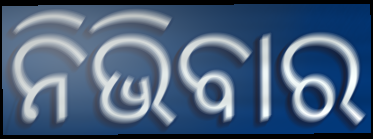
ନିଭିବାର